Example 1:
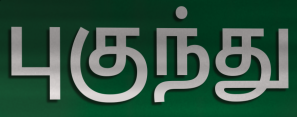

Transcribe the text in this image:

புகுந்து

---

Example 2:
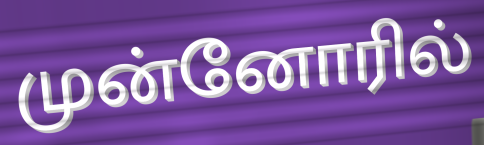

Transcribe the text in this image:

முன்னோரில்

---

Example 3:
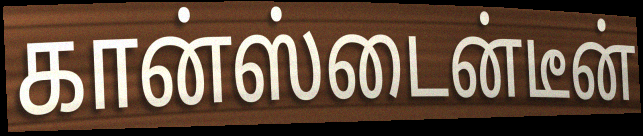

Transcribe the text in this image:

கான்ஸ்டைன்டீன்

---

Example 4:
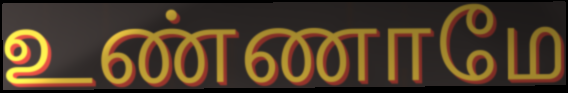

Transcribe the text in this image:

உண்ணாமே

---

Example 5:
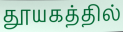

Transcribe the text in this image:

தூயகத்தில்